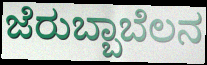
ಜೆರುಬ್ಬಾಬೆಲನ